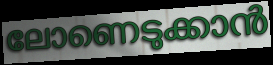
ലോണെടുക്കാൻ